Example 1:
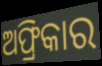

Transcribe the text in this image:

ଅଫ୍ରିକାର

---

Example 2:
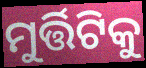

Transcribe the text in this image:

ମୁର୍ତ୍ତିଟିକୁ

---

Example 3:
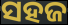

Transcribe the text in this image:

ସହଜ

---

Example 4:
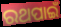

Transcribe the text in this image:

ରଥପାଇଁ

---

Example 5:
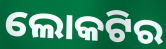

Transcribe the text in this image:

ଲୋକଟିର